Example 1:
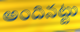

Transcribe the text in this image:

అందినట్టు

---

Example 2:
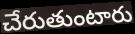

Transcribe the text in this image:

చేరుతుంటారు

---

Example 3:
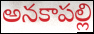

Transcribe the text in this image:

అనకాపల్లి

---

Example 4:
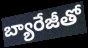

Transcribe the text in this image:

బ్యారేజీతో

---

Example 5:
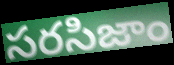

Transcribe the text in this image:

సరసిజాం